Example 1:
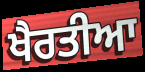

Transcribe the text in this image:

ਖੈਰਤੀਆ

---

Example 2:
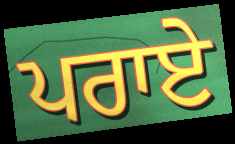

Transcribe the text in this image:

ਪਰਾਏ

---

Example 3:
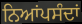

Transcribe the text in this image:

ਨਿਆਂਪਸੰਦਾਂ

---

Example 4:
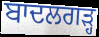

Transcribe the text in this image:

ਬਾਦਲਗੜ੍ਹ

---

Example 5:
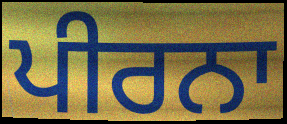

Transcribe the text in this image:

ਪੀਰਨਾ